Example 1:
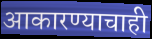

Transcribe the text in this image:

आकारण्याचाही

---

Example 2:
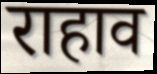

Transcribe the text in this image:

राहाव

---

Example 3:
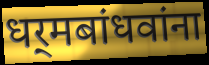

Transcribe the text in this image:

धर्मबांधवांना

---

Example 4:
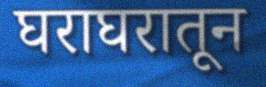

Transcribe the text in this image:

घराघरातून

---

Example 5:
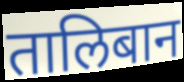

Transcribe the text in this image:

तालिबान